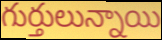
గుర్తులున్నాయి